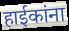
हाईकांना